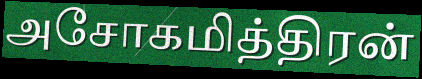
அசோகமித்திரன்